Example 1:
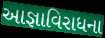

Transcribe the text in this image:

આજ્ઞાવિરાધના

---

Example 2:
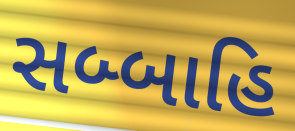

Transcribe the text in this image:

સબ્બાહિ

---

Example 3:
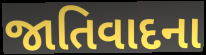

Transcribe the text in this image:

જાતિવાદના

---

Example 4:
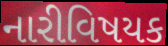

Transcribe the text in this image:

નારીવિષયક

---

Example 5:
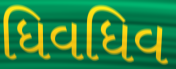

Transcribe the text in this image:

ધિવધિવ